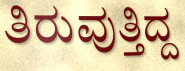
ತಿರುವುತ್ತಿದ್ದ